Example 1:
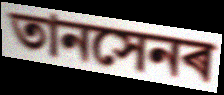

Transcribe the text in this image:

তানসেনৰ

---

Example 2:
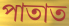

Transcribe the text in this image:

পাতাত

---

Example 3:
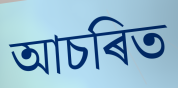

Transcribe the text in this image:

আচৰিত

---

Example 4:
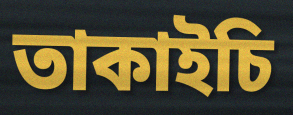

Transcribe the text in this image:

তাকাইচি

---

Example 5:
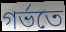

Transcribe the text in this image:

গৰ্ভতে